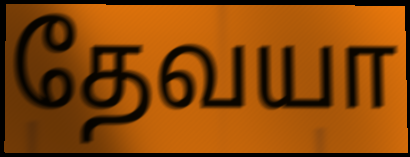
தேவயா